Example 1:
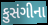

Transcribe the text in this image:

કુસંગીના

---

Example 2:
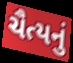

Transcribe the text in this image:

ચૈત્યનું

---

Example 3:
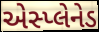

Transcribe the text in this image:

એસ્પ્લેનેડ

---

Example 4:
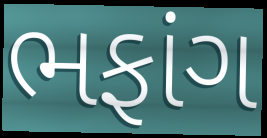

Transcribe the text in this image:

ભફાંગ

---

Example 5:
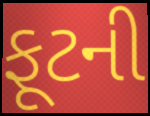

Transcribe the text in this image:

ફૂટની